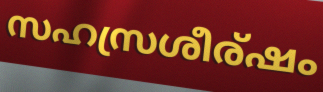
സഹസ്രശീര്ഷം